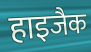
हाइजैक